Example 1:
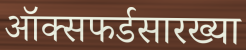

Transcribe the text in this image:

ऑक्सफर्डसारख्या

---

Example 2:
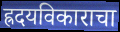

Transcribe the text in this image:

ह्रदयविकाराचा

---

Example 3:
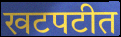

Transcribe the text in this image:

खटपटीत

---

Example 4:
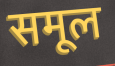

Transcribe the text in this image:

समूल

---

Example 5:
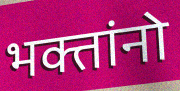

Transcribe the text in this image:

भक्तांनो